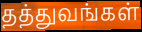
தத்துவங்கள்